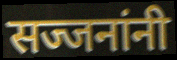
सज्जनांनी